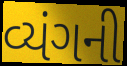
વ્યંગની